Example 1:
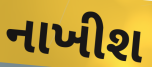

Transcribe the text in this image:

નાખીશ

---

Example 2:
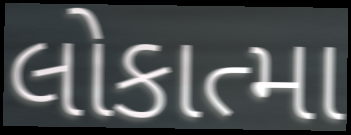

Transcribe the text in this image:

લોકાત્મા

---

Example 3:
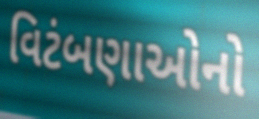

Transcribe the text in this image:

વિટંબણાઓનો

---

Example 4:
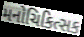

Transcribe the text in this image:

મનોચિકિત્સક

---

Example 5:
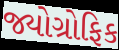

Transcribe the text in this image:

જ્યોગ્રોફિક